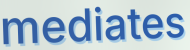
mediates